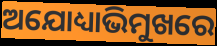
ଅଯୋଧ୍ୟାଭିମୁଖରେ